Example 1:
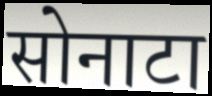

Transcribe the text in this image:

सोनाटा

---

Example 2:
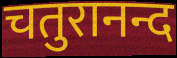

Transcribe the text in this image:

चतुरानन्द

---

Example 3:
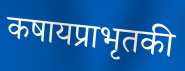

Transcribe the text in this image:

कषायप्राभृतकी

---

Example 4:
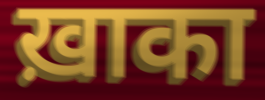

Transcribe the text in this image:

ख़ाका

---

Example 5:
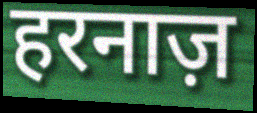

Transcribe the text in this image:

हरनाज़